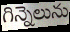
గిన్నెలును